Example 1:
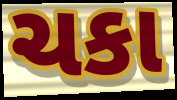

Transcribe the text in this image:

ચકા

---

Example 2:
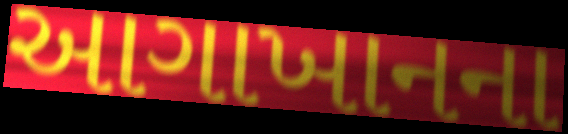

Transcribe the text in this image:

આગાખાનના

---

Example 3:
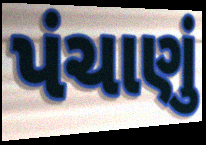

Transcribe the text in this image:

પંચાણું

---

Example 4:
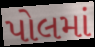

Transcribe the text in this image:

પોલમાં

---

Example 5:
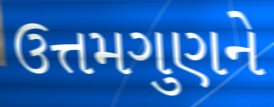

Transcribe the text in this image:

ઉત્તમગુણને